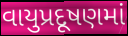
વાયુપ્રદૂષણમાં